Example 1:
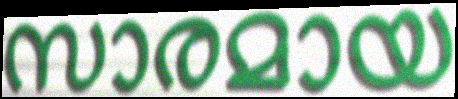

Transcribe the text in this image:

സാരമായ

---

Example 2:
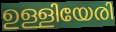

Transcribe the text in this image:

ഉള്ളിയേരി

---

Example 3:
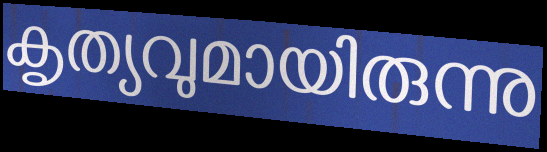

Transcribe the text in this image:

കൃത്യവുമായിരുന്നു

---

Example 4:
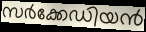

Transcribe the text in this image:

സർക്കേഡിയൻ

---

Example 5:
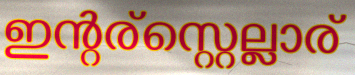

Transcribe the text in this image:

ഇന്റര്സ്റ്റെല്ലാര്